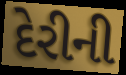
દેરીની